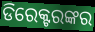
ଡିରେକ୍ଟରଙ୍କର